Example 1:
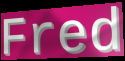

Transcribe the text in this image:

Fred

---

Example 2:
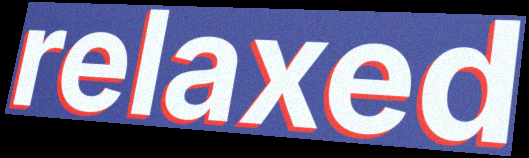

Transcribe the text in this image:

relaxed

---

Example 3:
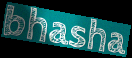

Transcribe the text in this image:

bhasha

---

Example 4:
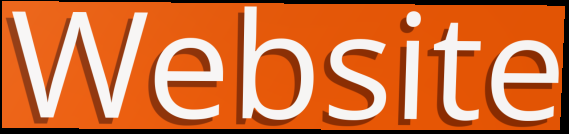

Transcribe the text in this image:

Website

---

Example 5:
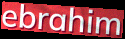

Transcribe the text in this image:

ebrahim